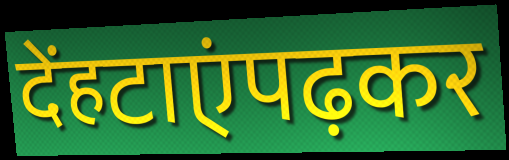
देंहटाएंपढ़कर